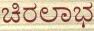
ಚಿರಲಾಭ